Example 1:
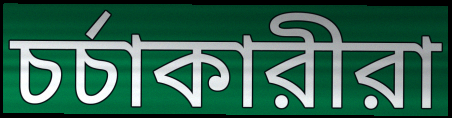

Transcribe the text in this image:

চর্চাকারীরা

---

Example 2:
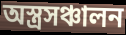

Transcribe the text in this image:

অস্ত্রসঞ্চালন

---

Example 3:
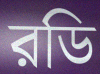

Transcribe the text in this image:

রডি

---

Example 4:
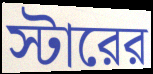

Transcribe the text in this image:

স্টারের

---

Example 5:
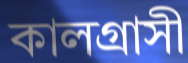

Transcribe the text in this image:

কালগ্রাসী